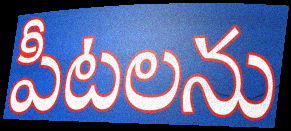
పీటలను